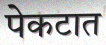
पेकटात